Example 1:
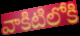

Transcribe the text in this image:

వాకిటిలోకి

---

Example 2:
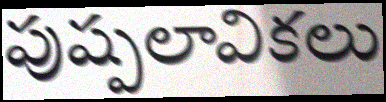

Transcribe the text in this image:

పుష్పలావికలు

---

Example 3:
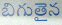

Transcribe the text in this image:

బిగుతైన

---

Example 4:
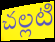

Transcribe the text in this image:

చల్లటి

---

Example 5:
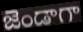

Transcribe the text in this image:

జెండాగా